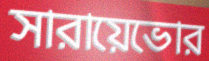
সারায়েভোর